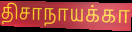
திசாநாயக்கா